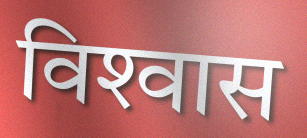
विश्‍वास